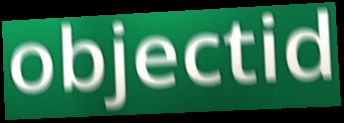
objectid